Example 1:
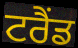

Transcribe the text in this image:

ਟਰੈਂਡ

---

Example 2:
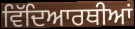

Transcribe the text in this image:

ਵਿੱਦਿਆਰਥੀਆਂ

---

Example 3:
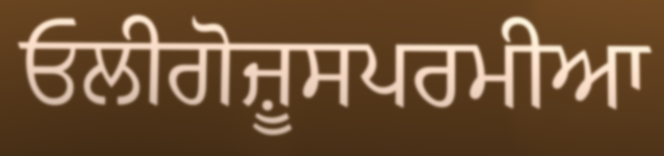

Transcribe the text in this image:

ਓਲੀਗੋਜ਼ੂਸਪਰਮੀਆ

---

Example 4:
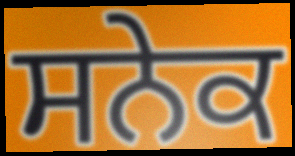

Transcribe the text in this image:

ਸਨੇਕ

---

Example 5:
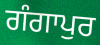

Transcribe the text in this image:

ਗੰਗਾਪੁਰ